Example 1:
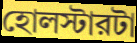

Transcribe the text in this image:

হোলস্টারটা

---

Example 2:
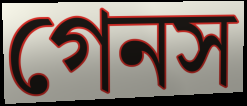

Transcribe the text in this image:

গেনস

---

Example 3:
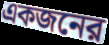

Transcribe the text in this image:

একজনের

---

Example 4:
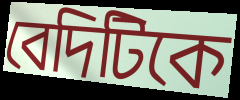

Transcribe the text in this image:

বেদিটিকে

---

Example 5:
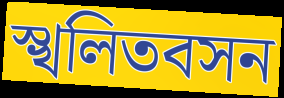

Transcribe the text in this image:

স্খলিতবসন